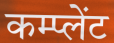
कम्प्लेंट